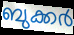
ബുക്കർ